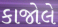
કાજોલે